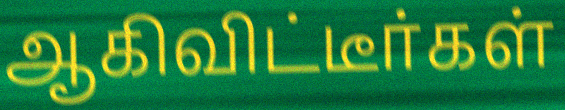
ஆகிவிட்டீர்கள்